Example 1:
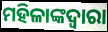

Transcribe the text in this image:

ମହିଳାଙ୍କଦ୍ୱାରା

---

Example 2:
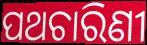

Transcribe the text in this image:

ପଥଚାରିଣୀ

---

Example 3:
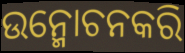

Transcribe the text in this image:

ଉନ୍ମୋଚନକରି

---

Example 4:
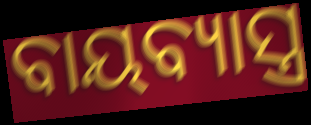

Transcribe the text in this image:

ବାୟବ୍ୟାସ୍ତ୍ର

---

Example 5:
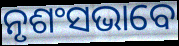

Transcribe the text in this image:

ନୃଶଂସଭାବେ